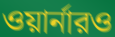
ওয়ার্নারও